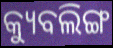
କ୍ୟୁବଲିଙ୍ଗ